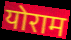
योराम